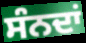
ਸੰਨਦਾਂ